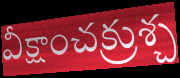
వీక్షాంచక్రుశ్చ